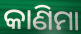
କାଣିମା